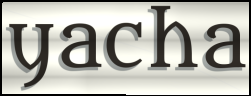
yacha